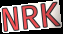
NRK